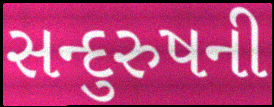
સન્દુરુષની